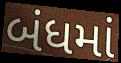
બંધમાં